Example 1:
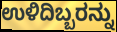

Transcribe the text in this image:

ಉಳಿದಿಬ್ಬರನ್ನು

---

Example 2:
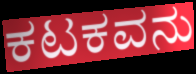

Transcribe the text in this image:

ಕಟಕವನು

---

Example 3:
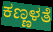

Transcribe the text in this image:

ಕಣ್ಣಳತೆ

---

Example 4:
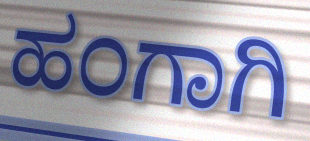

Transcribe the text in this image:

ಹಂಗಾಗಿ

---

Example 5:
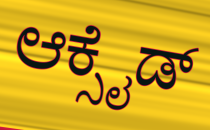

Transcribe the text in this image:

ಆಕ್ಸೈಡ್